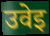
उवेइ